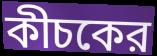
কীচকের